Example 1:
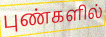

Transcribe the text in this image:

புண்களில்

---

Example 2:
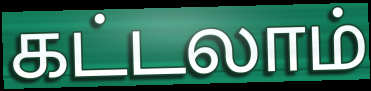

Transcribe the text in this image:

கட்டலாம்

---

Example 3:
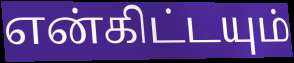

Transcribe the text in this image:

என்கிட்டயும்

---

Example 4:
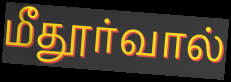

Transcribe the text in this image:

மீதூர்வால்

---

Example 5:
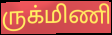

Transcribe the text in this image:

ருக்மிணி